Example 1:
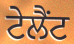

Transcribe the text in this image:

ਟੇਲੈਂਟ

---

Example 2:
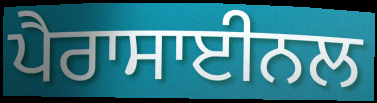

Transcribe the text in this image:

ਪੈਰਾਸਾਈਨਲ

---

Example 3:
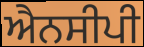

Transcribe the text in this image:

ਐਨਸੀਪੀ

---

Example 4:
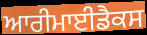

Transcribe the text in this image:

ਆਰੀਮਾਈਡੈਕਸ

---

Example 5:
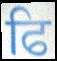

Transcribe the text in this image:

ਫਿ